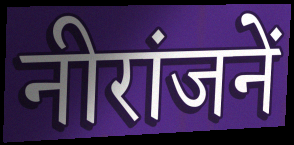
नीरांजनें